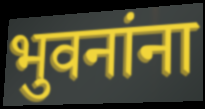
भुवनांना